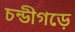
চন্ডীগড়ে